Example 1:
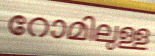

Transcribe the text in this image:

റോമിലുള്ള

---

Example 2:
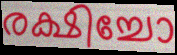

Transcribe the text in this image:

രക്ഷിച്ചോ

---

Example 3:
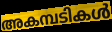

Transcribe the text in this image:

അകമ്പടികൾ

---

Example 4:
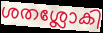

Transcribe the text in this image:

ശതശ്ലോകി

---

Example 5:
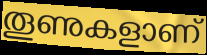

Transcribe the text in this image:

തൂണുകളാണ്